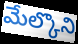
మేల్కొని